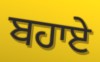
ਬਹਾਏ